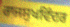
ਰਾਜਸੁਖਵਿੰਦਰ